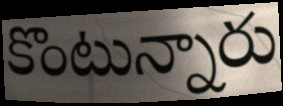
కొంటున్నారు